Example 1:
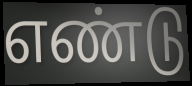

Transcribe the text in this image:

எண்டு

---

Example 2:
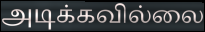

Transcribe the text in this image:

அடிக்கவில்லை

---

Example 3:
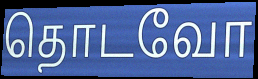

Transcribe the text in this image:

தொடவோ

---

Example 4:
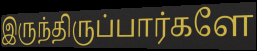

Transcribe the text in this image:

இருந்திருப்பார்களே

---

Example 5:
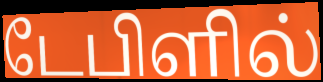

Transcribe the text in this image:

டேபிளில்